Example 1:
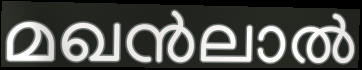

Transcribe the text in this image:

മഖൻലാൽ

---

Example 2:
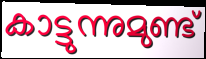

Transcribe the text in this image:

കാട്ടുന്നുമുണ്ട്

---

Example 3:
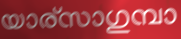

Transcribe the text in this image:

യാര്സാഗുമ്പാ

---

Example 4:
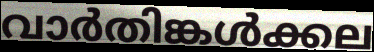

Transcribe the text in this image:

വാർതിങ്കൾക്കല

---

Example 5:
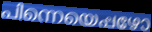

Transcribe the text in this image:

പിന്നെയെപ്പഴോ